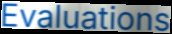
Evaluations